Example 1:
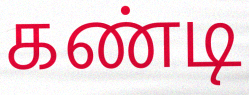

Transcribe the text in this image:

கண்டி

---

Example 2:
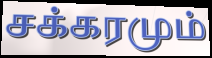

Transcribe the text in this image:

சக்கரமும்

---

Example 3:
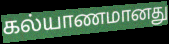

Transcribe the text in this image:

கல்யாணமானது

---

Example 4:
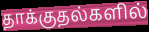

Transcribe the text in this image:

தாக்குதல்களில்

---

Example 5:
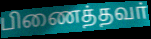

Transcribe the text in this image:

பிணைத்தவர்